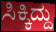
ಸಿಕ್ಕಿದ್ದು